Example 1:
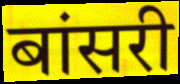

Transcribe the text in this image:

बांसरी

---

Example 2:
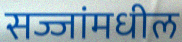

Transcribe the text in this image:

सज्जांमधील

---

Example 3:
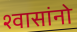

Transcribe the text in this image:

श्वासांनो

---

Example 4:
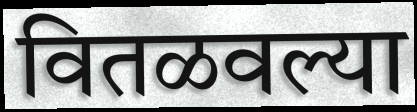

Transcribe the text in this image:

वितळवल्या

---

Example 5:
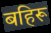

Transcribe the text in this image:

बहिरू